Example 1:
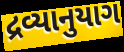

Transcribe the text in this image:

દ્રવ્યાનુયાગ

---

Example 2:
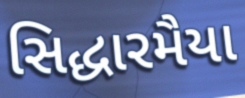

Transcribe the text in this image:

સિદ્ધારમૈયા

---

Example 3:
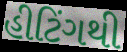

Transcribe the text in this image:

હીટિંગથી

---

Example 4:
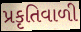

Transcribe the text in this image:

પ્રકૃતિવાળી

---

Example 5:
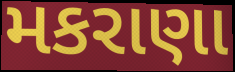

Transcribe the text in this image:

મકરાણા